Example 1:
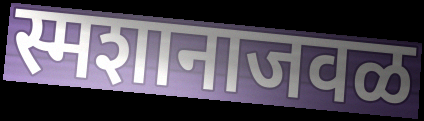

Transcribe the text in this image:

स्मशानाजवळ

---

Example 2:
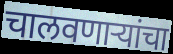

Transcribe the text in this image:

चालवणाऱ्यांचा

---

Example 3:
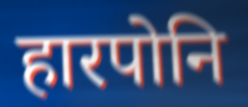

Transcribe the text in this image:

हारपोनि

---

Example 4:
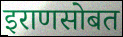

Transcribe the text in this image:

इराणसोबत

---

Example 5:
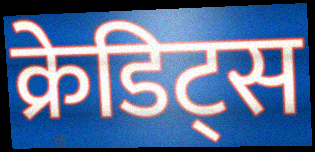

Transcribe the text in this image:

क्रेडिट्स